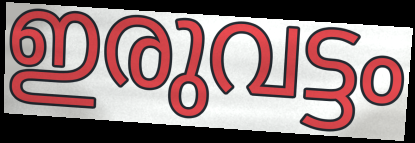
ഇരുവട്ടം